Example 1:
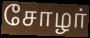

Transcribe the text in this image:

சோழர்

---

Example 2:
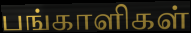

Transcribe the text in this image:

பங்காளிகள்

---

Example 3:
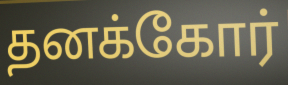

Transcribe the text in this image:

தனக்கோர்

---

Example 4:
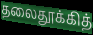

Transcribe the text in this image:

தலைதூக்கித்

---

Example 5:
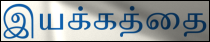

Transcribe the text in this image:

இயக்கத்தை